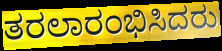
ತರಲಾರಂಭಿಸಿದರು